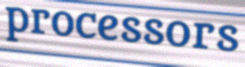
processors